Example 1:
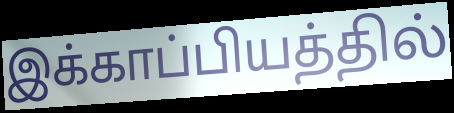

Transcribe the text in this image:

இக்காப்பியத்தில்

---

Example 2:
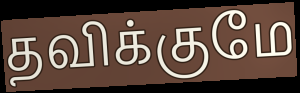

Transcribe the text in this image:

தவிக்குமே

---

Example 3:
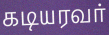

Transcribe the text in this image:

கடியரவர்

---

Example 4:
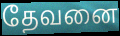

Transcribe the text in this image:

தேவனை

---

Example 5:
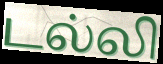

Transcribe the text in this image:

டல்லி